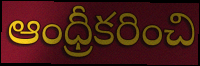
ఆంధ్రీకరించి